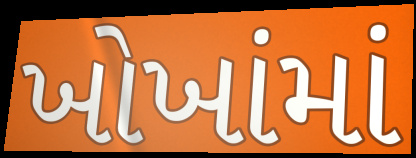
ખોખાંમાં